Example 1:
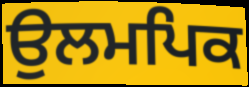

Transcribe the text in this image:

ਉਲਮਪਿਕ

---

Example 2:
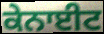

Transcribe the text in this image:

ਕੇਨਾਈਟ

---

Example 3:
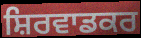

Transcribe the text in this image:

ਸ਼ਿਰਵਾਡਕਰ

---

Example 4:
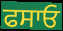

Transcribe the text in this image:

ਫਸਾਓ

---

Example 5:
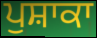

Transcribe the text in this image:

ਪੁਸ਼ਾਕਾ